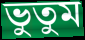
ভুতুম